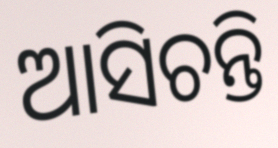
ଆସିଚନ୍ତି